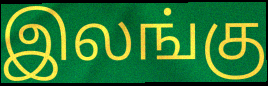
இலங்கு